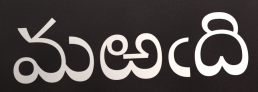
మఱఁది